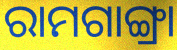
ରାମଗାଙ୍ଗ୍ରା